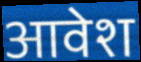
आवेश